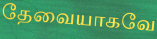
தேவையாகவே